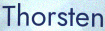
Thorsten